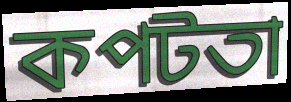
কপটতা